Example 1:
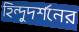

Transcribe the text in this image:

হিন্দুদর্শনের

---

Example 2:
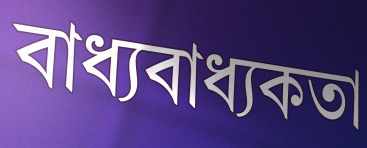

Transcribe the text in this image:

বাধ্যবাধ্যকতা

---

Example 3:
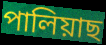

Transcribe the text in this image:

পালিয়াছ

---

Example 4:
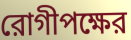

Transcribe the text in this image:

রোগীপক্ষের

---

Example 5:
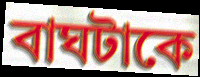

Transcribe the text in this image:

বাঘটাকে